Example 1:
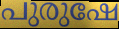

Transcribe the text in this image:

പുരുഷേ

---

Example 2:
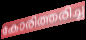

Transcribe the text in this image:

കോരിത്തരിച്ച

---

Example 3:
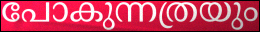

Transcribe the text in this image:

പോകുന്നത്രയും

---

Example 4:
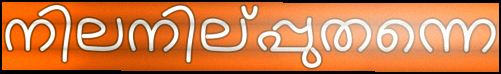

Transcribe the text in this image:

നിലനില്പ്പുതന്നെ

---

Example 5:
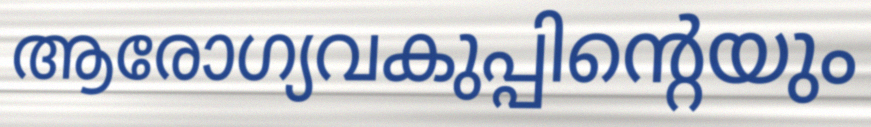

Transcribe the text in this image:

ആരോഗ്യവകുപ്പിന്റെയും